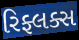
રિફ્લક્સ